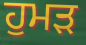
ਹੁਮੜ